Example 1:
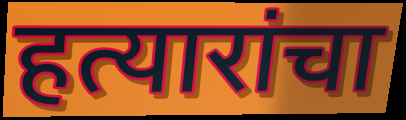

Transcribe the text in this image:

हत्यारांचा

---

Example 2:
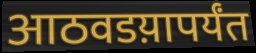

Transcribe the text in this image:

आठवडय़ापर्यंत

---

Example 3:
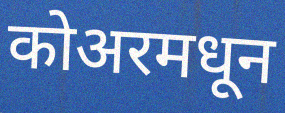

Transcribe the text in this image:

कोअरमधून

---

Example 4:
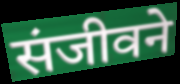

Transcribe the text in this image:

संजीवने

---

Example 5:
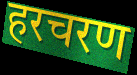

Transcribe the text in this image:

हरचरण